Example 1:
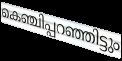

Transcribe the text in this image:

കെഞ്ചിപ്പറഞ്ഞിട്ടും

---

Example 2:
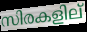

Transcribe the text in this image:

സിരകളില്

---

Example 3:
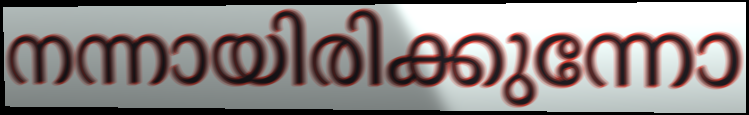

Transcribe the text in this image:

നന്നായിരിക്കുന്നോ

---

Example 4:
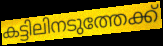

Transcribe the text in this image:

കട്ടിലിനടുത്തേക്ക്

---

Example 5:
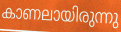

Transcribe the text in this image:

കാണലായിരുന്നു